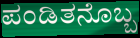
ಪಂಡಿತನೊಬ್ಬ